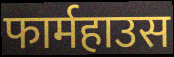
फार्महाउस